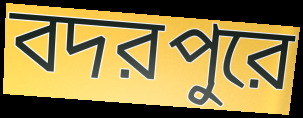
বদরপুরে